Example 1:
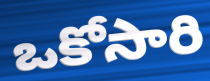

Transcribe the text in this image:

ఒకోసారి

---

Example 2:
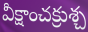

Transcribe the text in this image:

వీక్షాంచక్రుశ్చ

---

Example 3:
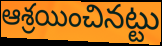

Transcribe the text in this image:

ఆశ్రయించినట్టు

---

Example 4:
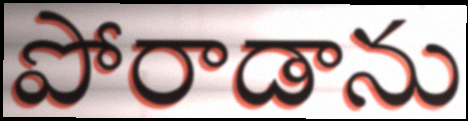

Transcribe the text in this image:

పోరాడాను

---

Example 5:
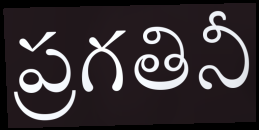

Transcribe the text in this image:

ప్రగతినీ